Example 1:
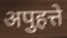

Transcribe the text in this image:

अपुहत्ते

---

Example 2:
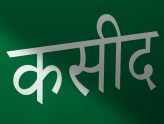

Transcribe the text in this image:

कसीद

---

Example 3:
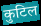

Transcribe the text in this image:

कुटिल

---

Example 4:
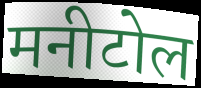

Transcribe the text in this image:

मनीटोल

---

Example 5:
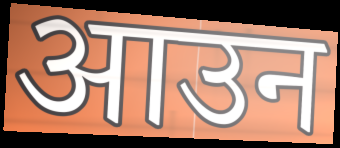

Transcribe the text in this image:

आउन